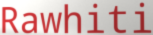
Rawhiti